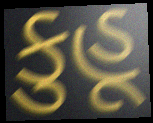
કુહૂ